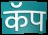
कॅप